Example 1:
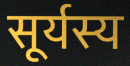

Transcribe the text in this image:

सूर्यस्य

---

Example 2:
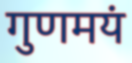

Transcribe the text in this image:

गुणमयं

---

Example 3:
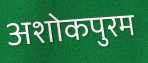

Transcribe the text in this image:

अशोकपुरम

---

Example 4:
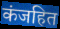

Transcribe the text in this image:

कंजहित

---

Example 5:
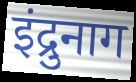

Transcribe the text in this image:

इंद्रुनाग